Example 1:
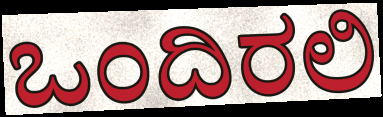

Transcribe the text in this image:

ಒಂದಿರಲಿ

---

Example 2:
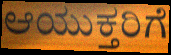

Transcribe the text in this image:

ಆಯುಕ್ತರಿಗೆ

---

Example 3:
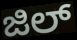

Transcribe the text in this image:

ಜಿಲ್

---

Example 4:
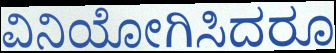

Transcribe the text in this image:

ವಿನಿಯೋಗಿಸಿದರೂ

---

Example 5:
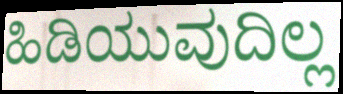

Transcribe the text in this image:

ಹಿಡಿಯುವುದಿಲ್ಲ